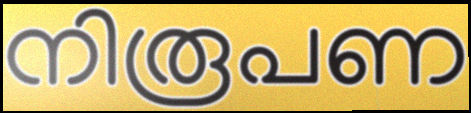
നിരൂപണ